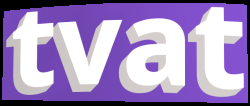
tvat